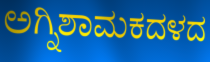
ಅಗ್ನಿಶಾಮಕದಳದ